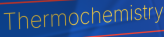
Thermochemistry